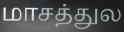
மாசத்துல